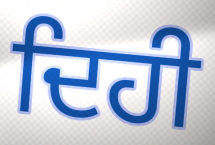
ਦਿਹੀ